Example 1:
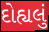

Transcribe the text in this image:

દોહ્યલું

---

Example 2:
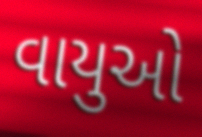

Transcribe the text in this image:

વાયુઓ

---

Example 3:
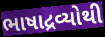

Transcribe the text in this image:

ભાષાદ્રવ્યોથી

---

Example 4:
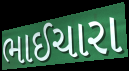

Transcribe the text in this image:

ભાઈચારા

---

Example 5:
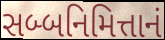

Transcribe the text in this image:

સબ્બનિમિત્તાનં